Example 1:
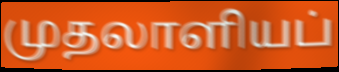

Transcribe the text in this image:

முதலாளியப்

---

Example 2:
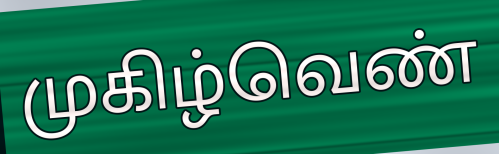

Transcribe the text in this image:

முகிழ்வெண்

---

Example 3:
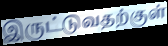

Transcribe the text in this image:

இருட்டுவதற்குள்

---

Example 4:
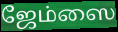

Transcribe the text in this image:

ஜேம்ஸை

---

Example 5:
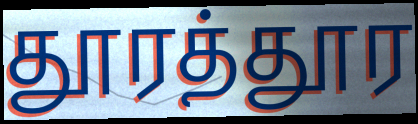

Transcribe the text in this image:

தூரத்தூர